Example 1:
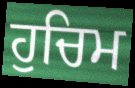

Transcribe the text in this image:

ਹੁਚਿਮ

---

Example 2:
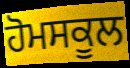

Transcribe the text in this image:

ਹੋਮਸਕੂਲ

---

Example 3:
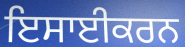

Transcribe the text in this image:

ਇਸਾਈਕਰਨ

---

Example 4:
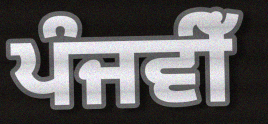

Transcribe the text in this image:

ਪੰਜਵੀਁ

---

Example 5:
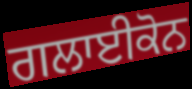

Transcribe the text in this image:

ਗਲਾਈਕੋਨ